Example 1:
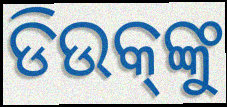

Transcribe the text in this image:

ଡିଉକ୍‌ଙ୍କୁ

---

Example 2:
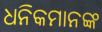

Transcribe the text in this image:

ଧନିକମାନଙ୍କ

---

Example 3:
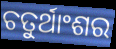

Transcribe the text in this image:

ଚତୁର୍ଥାଂଶର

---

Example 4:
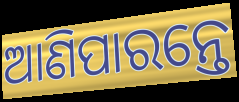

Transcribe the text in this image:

ଆଣିପାରନ୍ତେ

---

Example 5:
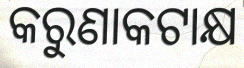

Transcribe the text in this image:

କରୁଣାକଟାକ୍ଷ